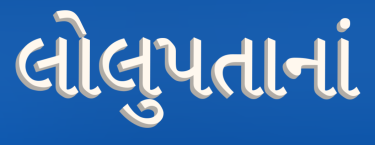
લોલુપતાનાં